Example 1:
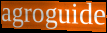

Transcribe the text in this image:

agroguide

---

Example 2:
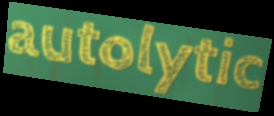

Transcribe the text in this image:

autolytic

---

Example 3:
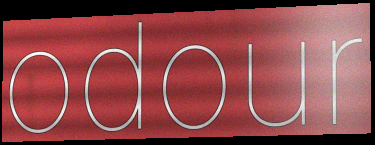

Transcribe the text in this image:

odour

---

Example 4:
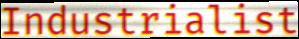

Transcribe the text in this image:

Industrialist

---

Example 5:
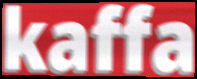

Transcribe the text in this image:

kaffa